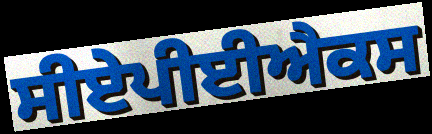
ਸੀਏਪੀਈਐਕਸ